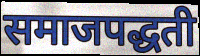
समाजपद्धती